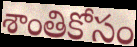
శాంతికోసం